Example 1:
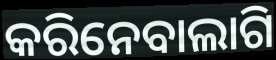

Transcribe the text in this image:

କରିନେବାଲାଗି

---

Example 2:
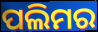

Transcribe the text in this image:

ପଲିମର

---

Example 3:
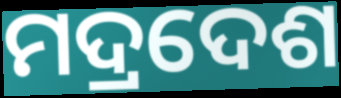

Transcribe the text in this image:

ମଦ୍ରଦେଶ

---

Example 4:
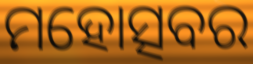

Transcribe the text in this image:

ମହୋତ୍ସବର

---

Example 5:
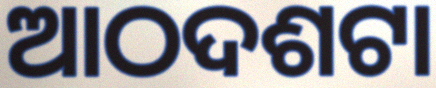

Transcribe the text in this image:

ଆଠଦଶଟା